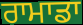
ਰਾਮਾਡਾ